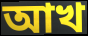
আখ